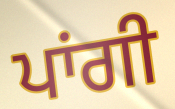
ਪਾਂਗੀ